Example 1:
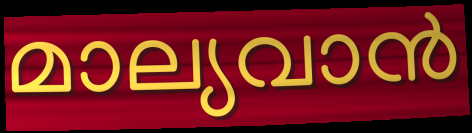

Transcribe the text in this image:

മാല്യവാൻ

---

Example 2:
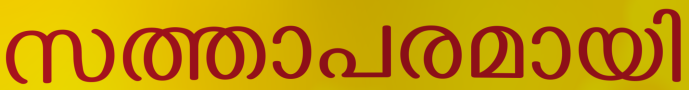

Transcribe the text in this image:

സത്താപരമായി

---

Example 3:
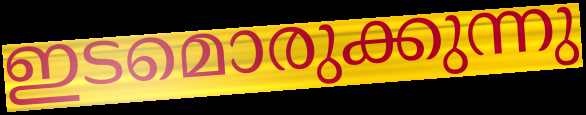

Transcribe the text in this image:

ഇടമൊരുക്കുന്നു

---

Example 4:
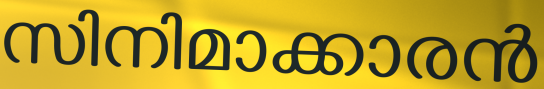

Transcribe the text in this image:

സിനിമാക്കാരൻ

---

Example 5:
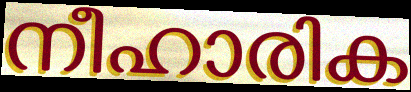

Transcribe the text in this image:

നീഹാരിക